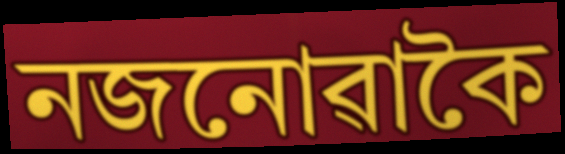
নজনোৱাকৈ